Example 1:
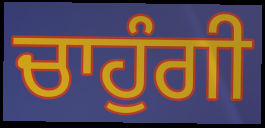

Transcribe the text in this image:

ਚਾਹੁੰਗੀ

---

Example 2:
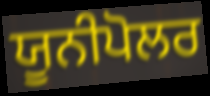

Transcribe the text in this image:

ਯੂਨੀਪੋਲਰ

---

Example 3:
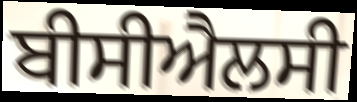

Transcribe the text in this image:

ਬੀਸੀਐਲਸੀ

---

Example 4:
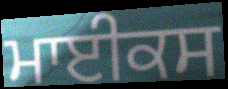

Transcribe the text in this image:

ਮਾਈਕਸ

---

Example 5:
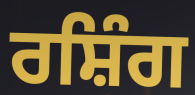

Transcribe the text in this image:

ਰਸ਼ਿੰਗ